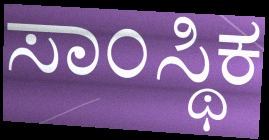
ಸಾಂಸ್ಥಿಕ